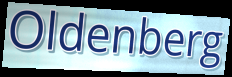
Oldenberg